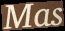
Mas